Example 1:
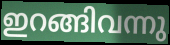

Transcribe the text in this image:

ഇറങ്ങിവന്നു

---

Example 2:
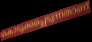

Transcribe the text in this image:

കൊടുക്കപ്പെടുന്നതാണ്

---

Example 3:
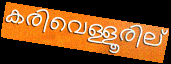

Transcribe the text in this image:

കരിവെള്ളൂരില്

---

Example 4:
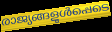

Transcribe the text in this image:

രാജ്യങ്ങളുൾപ്പെടെ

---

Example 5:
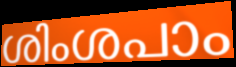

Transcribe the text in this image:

ശിംശപാം